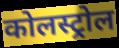
कोलस्ट्रोल